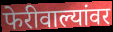
फेरीवाल्यांवर